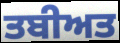
ਤਬੀਅਤ